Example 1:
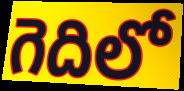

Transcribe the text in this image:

గెదిలో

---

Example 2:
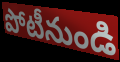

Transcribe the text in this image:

పోటీనుండి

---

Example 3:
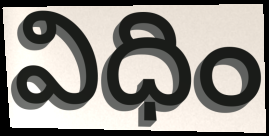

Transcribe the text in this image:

విధిం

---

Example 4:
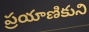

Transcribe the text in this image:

ప్రయాణికుని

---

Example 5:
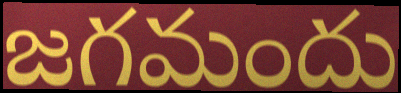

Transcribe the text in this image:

జగమందు